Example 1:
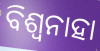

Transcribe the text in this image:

ବିଶ୍ଵନାହା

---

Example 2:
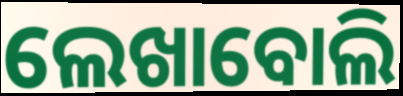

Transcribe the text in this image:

ଲେଖାବୋଲି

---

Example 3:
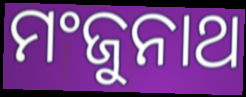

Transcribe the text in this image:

ମଂଜୁନାଥ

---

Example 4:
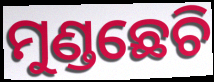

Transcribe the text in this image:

ମୁଣ୍ଡଛେଚି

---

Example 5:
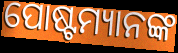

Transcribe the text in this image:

ପୋଷ୍ଟମ୍ୟାନଙ୍କ